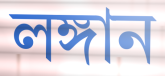
লঙ্গান